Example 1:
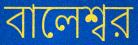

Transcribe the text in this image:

বালেশ্বর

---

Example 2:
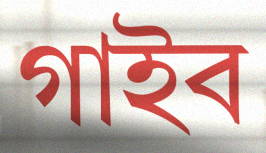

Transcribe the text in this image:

গাইব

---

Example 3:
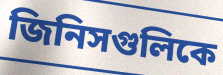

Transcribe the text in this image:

জিনিসগুলিকে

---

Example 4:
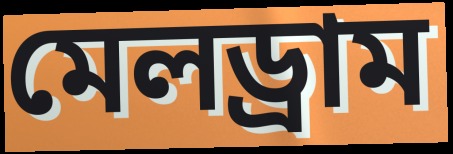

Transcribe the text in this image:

মেলড্রাম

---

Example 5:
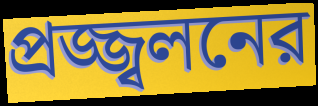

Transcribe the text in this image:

প্রজ্জ্বলনের